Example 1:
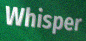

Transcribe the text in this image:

Whisper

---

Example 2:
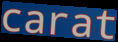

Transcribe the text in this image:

carat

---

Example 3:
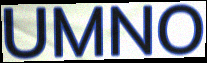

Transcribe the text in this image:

UMNO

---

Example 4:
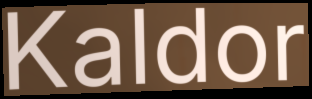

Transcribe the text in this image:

Kaldor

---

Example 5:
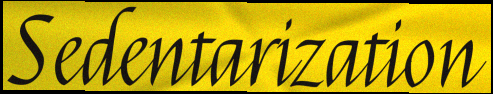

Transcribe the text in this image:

Sedentarization